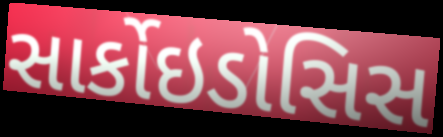
સાર્કોઇડોસિસ